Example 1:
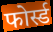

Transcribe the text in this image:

फोर्स्ड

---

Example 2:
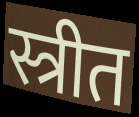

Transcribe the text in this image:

स्त्रीत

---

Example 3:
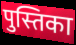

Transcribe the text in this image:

पुस्तिका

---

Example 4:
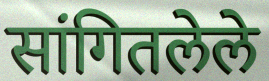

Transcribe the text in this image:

सांगितलेले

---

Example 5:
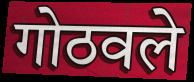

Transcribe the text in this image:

गोठवले